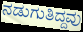
ನಡುಗುತಿದ್ದವು